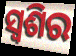
ସ୍ଵଶିର